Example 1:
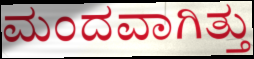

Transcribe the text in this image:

ಮಂದವಾಗಿತ್ತು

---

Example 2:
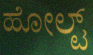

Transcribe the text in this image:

ಹೋಲ್ಟ್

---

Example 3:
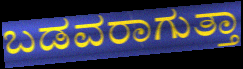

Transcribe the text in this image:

ಬಡವರಾಗುತ್ತಾ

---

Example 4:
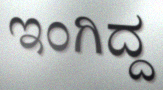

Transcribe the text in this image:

ಇಂಗಿದ್ದ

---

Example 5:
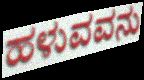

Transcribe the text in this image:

ಹಳುವವನು